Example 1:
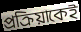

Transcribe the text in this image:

প্রক্রিয়াকেই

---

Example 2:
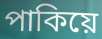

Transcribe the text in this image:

পাকিয়ে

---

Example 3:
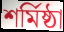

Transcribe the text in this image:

শর্মিষ্ঠা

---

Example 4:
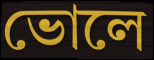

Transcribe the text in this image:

ভোলে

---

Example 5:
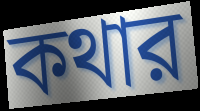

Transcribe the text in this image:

কথার